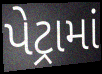
પેટ્રામાં